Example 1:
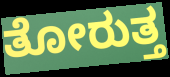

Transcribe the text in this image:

ತೋರುತ್ತ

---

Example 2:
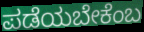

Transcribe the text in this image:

ಪಡೆಯಬೇಕೆಂಬ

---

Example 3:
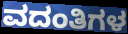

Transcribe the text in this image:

ವದಂತಿಗಳ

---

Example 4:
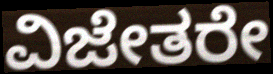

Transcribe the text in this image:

ವಿಜೇತರೇ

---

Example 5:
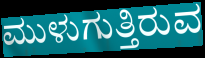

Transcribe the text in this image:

ಮುಳುಗುತ್ತಿರುವ